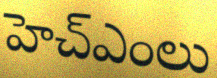
హెచ్ఎంలు